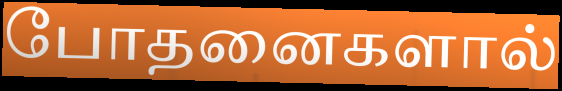
போதனைகளால்